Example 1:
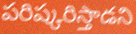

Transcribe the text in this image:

పరిష్కరిస్తాడని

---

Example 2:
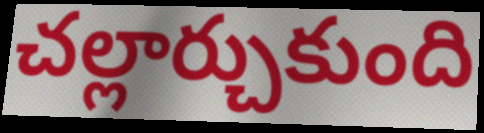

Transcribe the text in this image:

చల్లార్చుకుంది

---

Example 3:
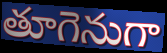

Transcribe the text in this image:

తూగెనుగా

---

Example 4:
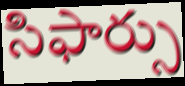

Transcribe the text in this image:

సిఫార్సు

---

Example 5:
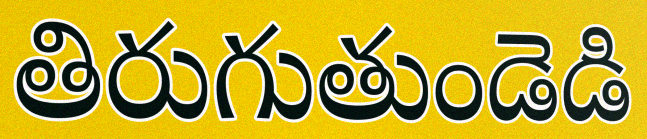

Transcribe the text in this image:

తిరుగుతుండెడి